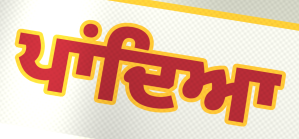
ਪਾਂਦਿਆ